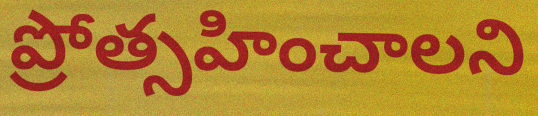
ప్రోత్సహించాలని